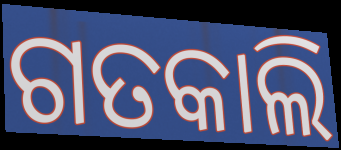
ଗତକାଲି